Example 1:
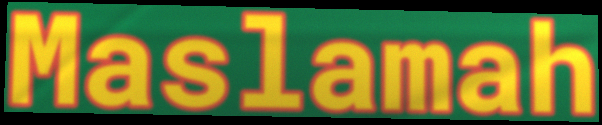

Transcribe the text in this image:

Maslamah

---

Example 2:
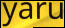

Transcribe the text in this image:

yaru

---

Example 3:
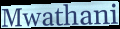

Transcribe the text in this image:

Mwathani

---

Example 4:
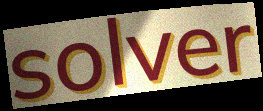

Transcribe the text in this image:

solver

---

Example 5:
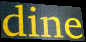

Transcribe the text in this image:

dine